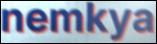
nemkya